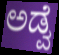
ಅಡ್ವೆ